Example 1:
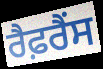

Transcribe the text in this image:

ਰੈਫ਼ਰੈਂਸ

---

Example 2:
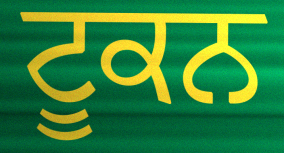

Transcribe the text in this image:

ਟੂਕਨ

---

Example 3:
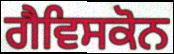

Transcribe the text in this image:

ਗੈਵਿਸਕੋਨ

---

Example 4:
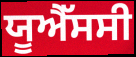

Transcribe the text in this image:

ਯੂਐੱਸਸੀ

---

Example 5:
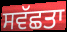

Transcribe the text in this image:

ਸਵੱਛਤਾ